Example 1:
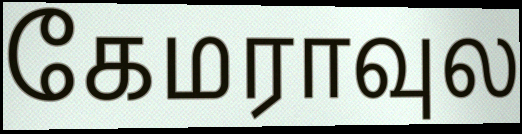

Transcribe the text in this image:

கேமராவுல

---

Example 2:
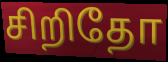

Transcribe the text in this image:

சிறிதோ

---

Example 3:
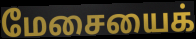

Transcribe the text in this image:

மேசையைக்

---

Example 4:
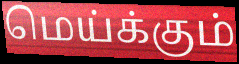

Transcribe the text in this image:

மெய்க்கும்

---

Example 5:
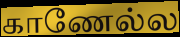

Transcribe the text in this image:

காணேல்ல